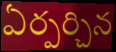
ఏర్పర్చిన